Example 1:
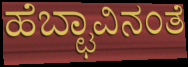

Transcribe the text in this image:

ಹೆಬ್ಟಾವಿನಂತೆ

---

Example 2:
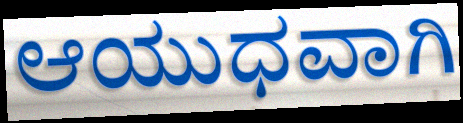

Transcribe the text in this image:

ಆಯುಧವಾಗಿ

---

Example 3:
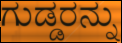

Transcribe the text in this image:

ಗುಡ್ಡರನ್ನು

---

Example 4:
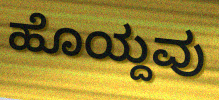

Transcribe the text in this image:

ಹೊಯ್ದವು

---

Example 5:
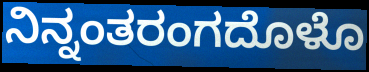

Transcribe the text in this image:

ನಿನ್ನಂತರಂಗದೊಳೊ